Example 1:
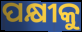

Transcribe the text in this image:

ପକ୍ଷୀକୁ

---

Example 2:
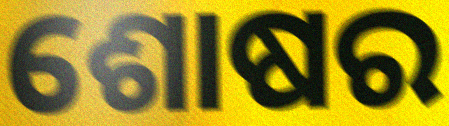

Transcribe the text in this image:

ଶୋଷର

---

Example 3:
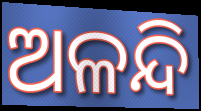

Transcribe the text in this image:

ଅଳନ୍ଦି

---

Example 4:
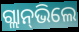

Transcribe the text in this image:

ଗ୍ଲାନ୍‌ଭିଲେ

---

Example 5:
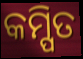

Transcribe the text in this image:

କମ୍ପିତ